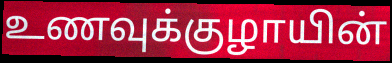
உணவுக்குழாயின்